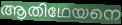
ആതിഥേയനെ